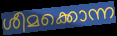
ശീമക്കൊന്ന